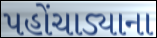
પહોંચાડ્યાના